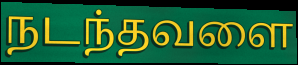
நடந்தவளை